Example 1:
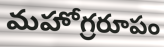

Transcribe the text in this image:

మహోగ్రరూపం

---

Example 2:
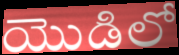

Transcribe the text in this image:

యొడిలో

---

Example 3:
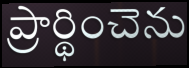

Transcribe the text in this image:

ప్రార్థించెను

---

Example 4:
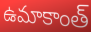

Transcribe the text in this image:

ఉమాకాంత్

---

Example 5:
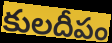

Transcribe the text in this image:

కులదీపం